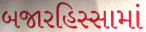
બજારહિસ્સામાં